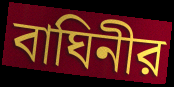
বাঘিনীর